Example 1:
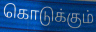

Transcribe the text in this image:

கொடுக்கும்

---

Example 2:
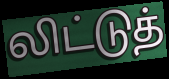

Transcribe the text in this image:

லிட்டுத்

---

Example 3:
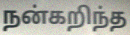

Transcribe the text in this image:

நன்கறிந்த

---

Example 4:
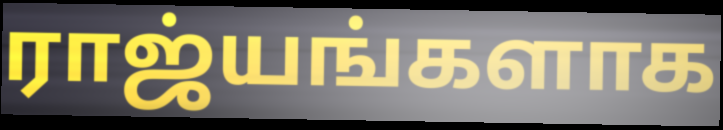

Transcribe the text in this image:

ராஜ்யங்களாக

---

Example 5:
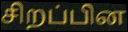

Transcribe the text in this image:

சிறப்பின